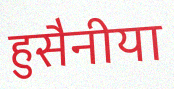
हुसैनीया